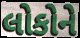
લોકોને